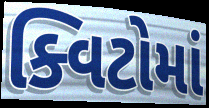
ક્વિટોમાં